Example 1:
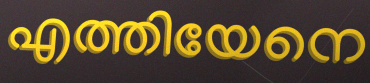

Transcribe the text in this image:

എത്തിയേനെ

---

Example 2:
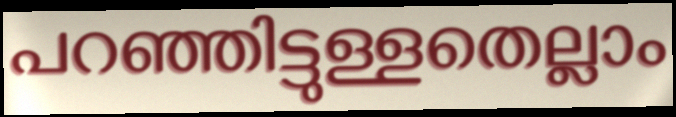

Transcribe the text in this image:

പറഞ്ഞിട്ടുള്ളതെല്ലാം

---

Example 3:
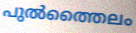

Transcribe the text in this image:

പുൽത്തൈലം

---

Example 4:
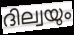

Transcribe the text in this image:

ദില്വയും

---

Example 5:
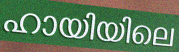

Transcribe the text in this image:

ഹായിയിലെ